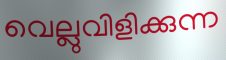
വെല്ലുവിളിക്കുന്ന